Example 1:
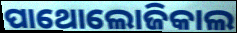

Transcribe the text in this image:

ପାଥୋଲୋଜିକାଲ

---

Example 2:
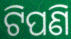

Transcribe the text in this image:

ଟିପଣି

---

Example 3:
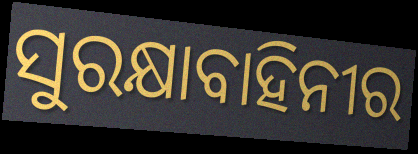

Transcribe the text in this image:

ସୁରକ୍ଷାବାହିନୀର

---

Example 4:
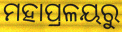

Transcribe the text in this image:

ମହାପ୍ରଳୟରୁ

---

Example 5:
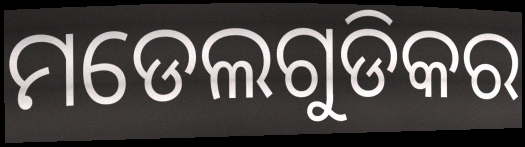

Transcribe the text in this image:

ମଡେଲଗୁଡିକର